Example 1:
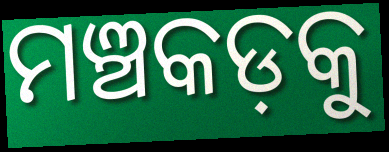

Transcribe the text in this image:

ମଞ୍ଚକଡ଼କୁ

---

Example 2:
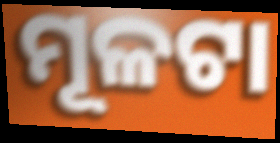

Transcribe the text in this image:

ମୂଳଟା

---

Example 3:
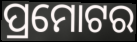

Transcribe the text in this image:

ପ୍ରମୋଟର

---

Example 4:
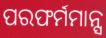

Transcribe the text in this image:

ପରଫର୍ମମାନ୍ସ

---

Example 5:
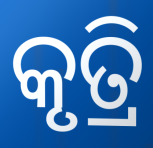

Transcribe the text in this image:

କୃତ୍ରି